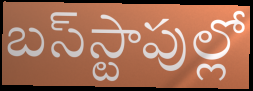
బస్‌స్టాపుల్లో